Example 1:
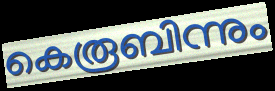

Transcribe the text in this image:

കെരൂബിന്നും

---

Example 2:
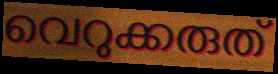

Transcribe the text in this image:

വെറുക്കരുത്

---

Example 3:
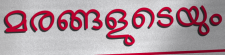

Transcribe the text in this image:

മരങ്ങളുടെയും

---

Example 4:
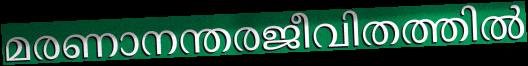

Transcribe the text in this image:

മരണാനന്തരജീവിതത്തിൽ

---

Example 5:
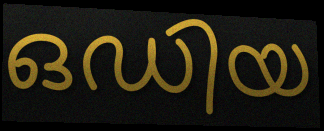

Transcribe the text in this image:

ഒഡിയ